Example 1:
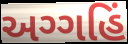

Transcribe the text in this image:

અગ્ગહિં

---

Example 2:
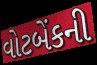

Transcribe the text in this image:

વોટબેંકની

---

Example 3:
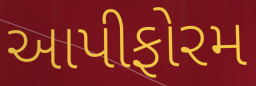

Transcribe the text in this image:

આપીફોરમ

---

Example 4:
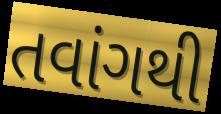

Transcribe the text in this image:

તવાંગથી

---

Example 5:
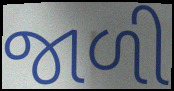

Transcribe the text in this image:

જાળી